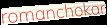
romanchokar